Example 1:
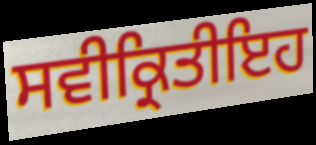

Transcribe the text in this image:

ਸਵੀਕ੍ਰਿਤੀਇਹ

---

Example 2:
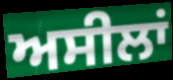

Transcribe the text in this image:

ਅਸੀਲਾਂ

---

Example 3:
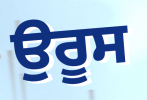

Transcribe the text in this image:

ਉਰੂਸ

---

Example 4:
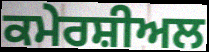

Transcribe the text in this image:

ਕਮੇਰਸ਼ੀਅਲ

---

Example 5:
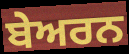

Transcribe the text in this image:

ਬੇਅਰਨ